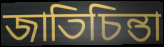
জাতিচিন্তা